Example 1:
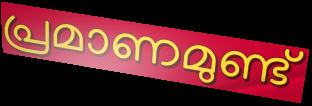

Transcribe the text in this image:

പ്രമാണമുണ്ട്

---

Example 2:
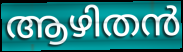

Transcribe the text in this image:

ആഴിതൻ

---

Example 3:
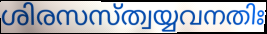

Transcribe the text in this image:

ശിരസസ്ത്വയ്യവനതിഃ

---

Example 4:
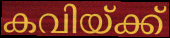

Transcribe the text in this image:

കവിയ്ക്ക്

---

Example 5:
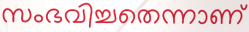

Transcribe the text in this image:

സംഭവിച്ചതെന്നാണ്